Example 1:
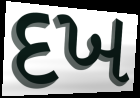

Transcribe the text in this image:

દખ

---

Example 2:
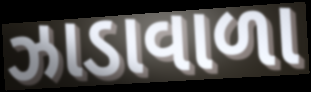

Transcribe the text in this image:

ઝાડાવાળા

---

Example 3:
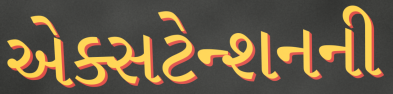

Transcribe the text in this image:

એક્સટેન્શનની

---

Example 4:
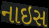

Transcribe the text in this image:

નાઇસ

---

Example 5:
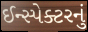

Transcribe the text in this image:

ઈન્સ્પેક્ટરનું